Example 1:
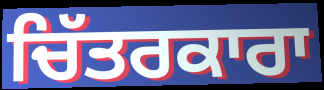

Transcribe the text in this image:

ਚਿੱਤਰਕਾਰਾ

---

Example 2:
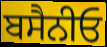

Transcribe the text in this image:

ਬਸੈਨੀਓ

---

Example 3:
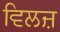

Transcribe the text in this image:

ਵਿਲਜ਼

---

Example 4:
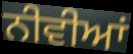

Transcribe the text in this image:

ਨੀਵੀਆਂ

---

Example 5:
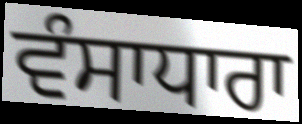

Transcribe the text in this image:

ਵੰਸਾਧਾਰਾ